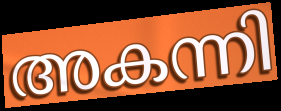
അകന്നി